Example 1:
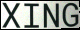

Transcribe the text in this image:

XING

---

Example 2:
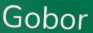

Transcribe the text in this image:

Gobor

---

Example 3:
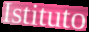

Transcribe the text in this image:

Istituto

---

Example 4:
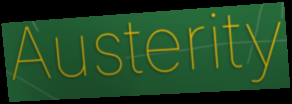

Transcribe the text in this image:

Austerity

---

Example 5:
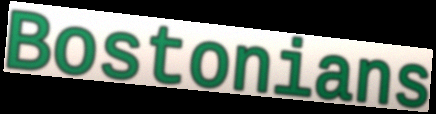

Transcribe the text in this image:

Bostonians